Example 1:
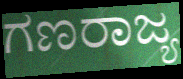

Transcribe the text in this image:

ಗಣರಾಜ್ಯ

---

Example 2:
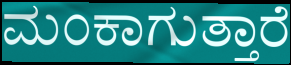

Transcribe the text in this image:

ಮಂಕಾಗುತ್ತಾರೆ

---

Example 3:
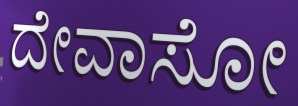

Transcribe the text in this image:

ದೇವಾಸೋ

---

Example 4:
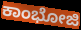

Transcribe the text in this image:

ಕಾಂಭೋಜಿ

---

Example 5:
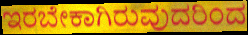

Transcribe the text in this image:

ಇರಬೇಕಾಗಿರುವುದರಿಂದ